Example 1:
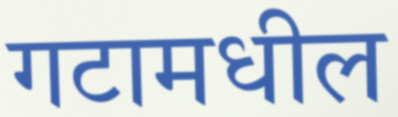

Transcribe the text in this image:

गटामधील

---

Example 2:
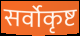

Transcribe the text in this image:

सर्वोकृष्ट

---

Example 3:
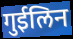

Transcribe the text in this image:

गुईलिन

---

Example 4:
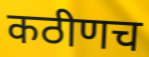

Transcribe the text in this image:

कठीणच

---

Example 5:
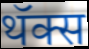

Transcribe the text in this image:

थॅक्स